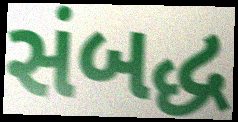
સંબદ્ધ